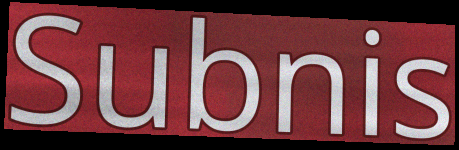
Subnis